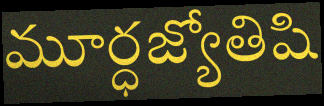
మూర్ధజ్యోతిషి